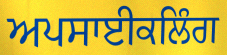
ਅਪਸਾਈਕਲਿੰਗ